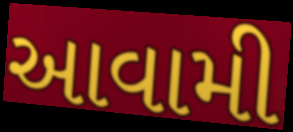
આવામી